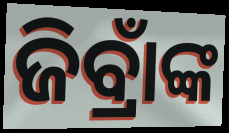
ଜିବ୍ରାଁଙ୍କ